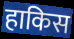
हाकिस